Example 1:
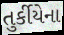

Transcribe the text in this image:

તુર્કીયેના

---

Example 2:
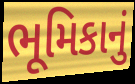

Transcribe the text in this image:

ભૂમિકાનું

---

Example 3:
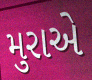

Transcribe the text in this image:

મુરાએ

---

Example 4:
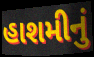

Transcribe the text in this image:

હાશમીનું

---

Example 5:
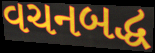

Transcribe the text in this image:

વચનબદ્ધ